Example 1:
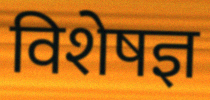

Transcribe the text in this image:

विशेषज्ञ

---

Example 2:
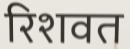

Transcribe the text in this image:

रिशवत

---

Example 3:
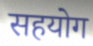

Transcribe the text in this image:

सहयोग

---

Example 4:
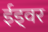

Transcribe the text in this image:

ईइ्वर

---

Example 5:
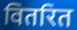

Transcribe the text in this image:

वितरित